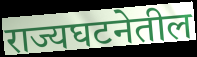
राज्यघटनेतील